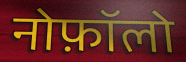
नोफ़ॉलो